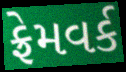
ફ્રેમવર્ક